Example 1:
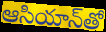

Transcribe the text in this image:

ఆసియాన్‌తో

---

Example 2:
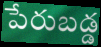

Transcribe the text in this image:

పేరుబడ్డ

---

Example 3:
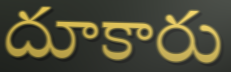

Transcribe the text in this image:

దూకారు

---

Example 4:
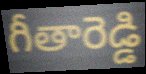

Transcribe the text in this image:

గీతారెడ్డి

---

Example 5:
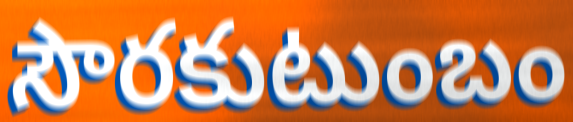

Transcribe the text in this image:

సౌరకుటుంబం